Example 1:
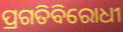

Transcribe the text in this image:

ପ୍ରଗତିବିରୋଧୀ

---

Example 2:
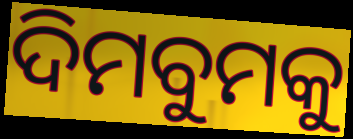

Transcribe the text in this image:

ଦିମବୁମକୁ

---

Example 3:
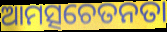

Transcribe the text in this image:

ଆମତ୍ସଚେତନତା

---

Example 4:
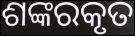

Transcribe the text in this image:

ଶଙ୍କରକୃତ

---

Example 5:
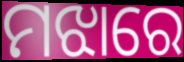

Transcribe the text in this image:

ମଝାରେ